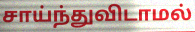
சாய்ந்துவிடாமல்